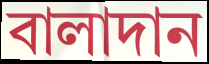
বালাদান